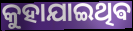
କୁହାଯାଇଥିଵ